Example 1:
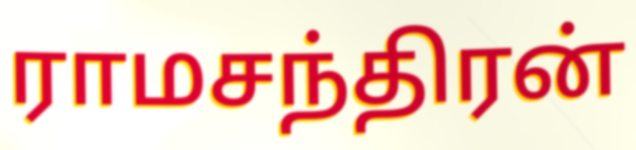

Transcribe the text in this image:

ராமசந்திரன்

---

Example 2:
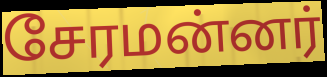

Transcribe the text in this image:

சேரமன்னர்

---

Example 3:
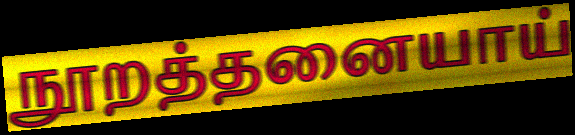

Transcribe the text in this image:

நூறத்தனையாய்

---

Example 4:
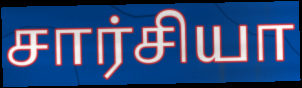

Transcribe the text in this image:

சார்சியா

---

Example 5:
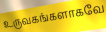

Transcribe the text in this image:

உருவகங்களாகவே